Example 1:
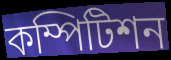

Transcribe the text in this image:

কম্পিটিশন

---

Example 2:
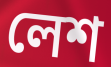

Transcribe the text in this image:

লেশ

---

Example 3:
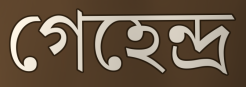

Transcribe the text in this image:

গেহেন্দ্র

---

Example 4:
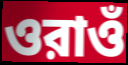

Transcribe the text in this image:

ওরাওঁ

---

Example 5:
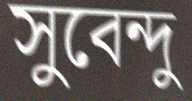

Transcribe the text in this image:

সুবেন্দু